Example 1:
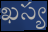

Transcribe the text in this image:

ఖస్య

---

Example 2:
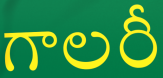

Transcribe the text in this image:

గాలరీ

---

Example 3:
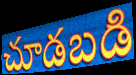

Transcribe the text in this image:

చూడబడి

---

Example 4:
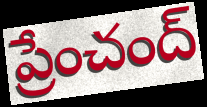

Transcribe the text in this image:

ప్రేంచంద్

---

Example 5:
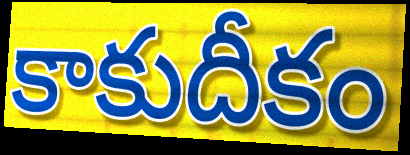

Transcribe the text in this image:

కాకుదీకం